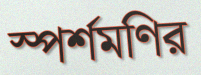
স্পর্শমণির